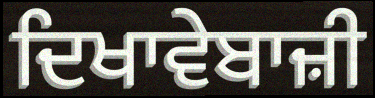
ਦਿਖਾਵੇਬਾਜ਼ੀ